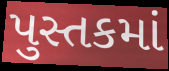
પુસ્તકમાં